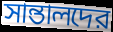
সান্তালদের